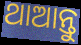
ଥାଆନ୍ତୁ